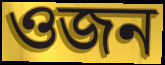
ওজন